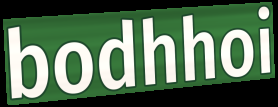
bodhhoi